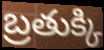
బ్రతుక్కి